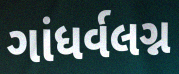
ગાંધર્વલગ્ન